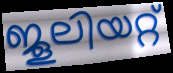
ജൂലിയറ്റ്